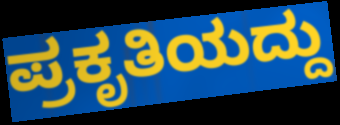
ಪ್ರಕೃತಿಯದ್ದು